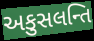
અકુસલન્તિ